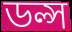
ডল্স